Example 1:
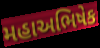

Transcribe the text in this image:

મહાઅભિષેક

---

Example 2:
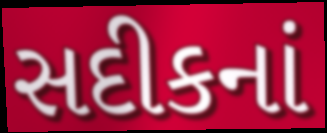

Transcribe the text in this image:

સદીકનાં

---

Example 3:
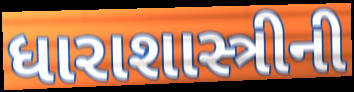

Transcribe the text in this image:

ધારાશાસ્ત્રીની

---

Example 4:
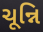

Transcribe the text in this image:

ચૂન્નિ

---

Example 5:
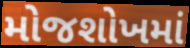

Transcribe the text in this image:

મોજશોખમાં